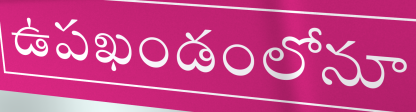
ఉపఖండంలోనూ